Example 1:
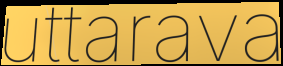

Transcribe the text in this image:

uttarava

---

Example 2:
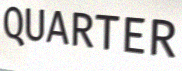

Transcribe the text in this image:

QUARTER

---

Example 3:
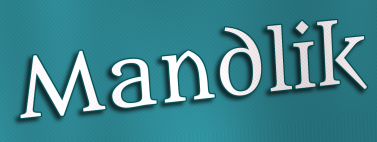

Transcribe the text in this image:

Mandlik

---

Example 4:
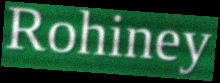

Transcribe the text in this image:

Rohiney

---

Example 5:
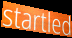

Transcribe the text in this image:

startled